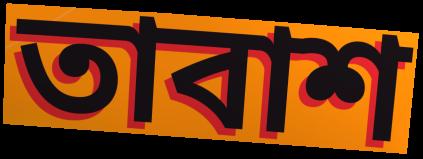
তাবাশ